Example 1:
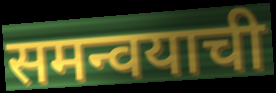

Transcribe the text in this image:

समन्वयाची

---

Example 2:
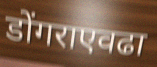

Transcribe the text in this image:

डोंगराएवढा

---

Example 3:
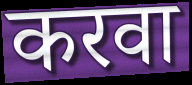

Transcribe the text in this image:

करवा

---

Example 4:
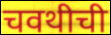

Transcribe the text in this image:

चवथीची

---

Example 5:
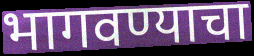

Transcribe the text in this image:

भागवण्याचा